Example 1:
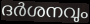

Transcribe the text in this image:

ദർശനവും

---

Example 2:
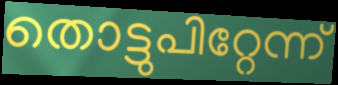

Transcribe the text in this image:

തൊട്ടുപിറ്റേന്ന്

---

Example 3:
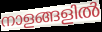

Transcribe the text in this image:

നാളങ്ങളിൽ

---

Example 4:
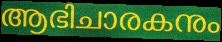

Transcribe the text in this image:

ആഭിചാരകനും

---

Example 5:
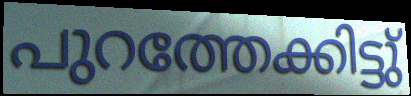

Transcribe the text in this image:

പുറത്തേക്കിട്ടു്